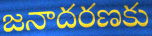
జనాదరణకు